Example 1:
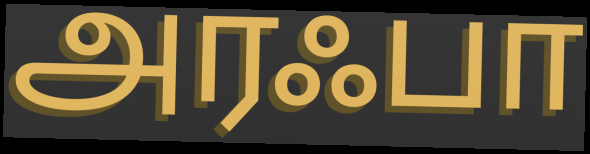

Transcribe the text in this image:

அரஃபா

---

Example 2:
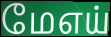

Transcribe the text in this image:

மேஎய்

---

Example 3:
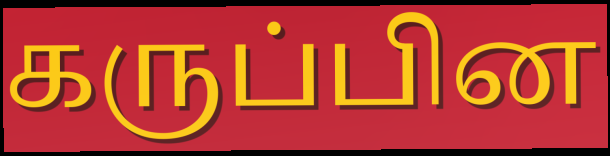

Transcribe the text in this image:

கருப்பின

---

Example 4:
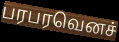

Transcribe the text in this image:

பரபரவெனச்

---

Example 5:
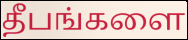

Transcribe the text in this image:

தீபங்களை